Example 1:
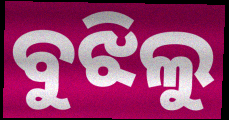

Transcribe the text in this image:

ବୁଝିଲୁ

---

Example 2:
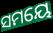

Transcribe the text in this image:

ସମୟେ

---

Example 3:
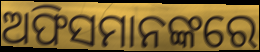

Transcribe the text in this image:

ଅଫିସମାନଙ୍କରେ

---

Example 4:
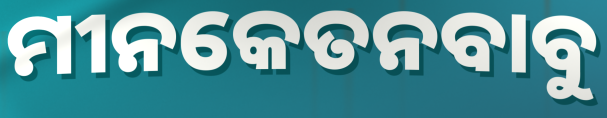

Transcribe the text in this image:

ମୀନକେତନବାବୁ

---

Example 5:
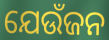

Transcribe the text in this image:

ଯେଉଁଜନ